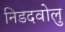
निडदवोलु